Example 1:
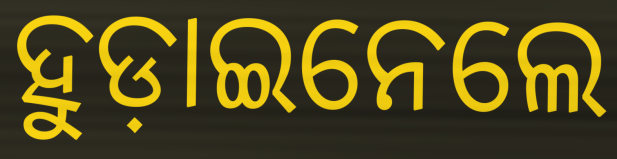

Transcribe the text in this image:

ହୁଡ଼ାଇନେଲେ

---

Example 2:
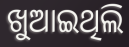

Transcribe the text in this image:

ଖୁଆଇଥିଲି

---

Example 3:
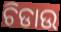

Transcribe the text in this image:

ଚିଡାଉ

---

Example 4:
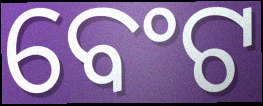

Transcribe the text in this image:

ବେଂଟ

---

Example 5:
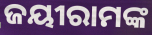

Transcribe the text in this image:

ଜୟୀରାମଙ୍କ